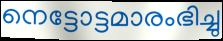
നെട്ടോട്ടമാരംഭിച്ചു